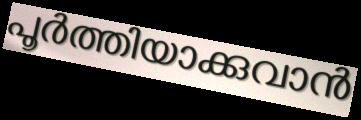
പൂർത്തിയാക്കുവാൻ